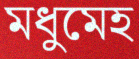
মধুমেহ